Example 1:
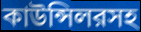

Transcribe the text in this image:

কাউন্সিলরসহ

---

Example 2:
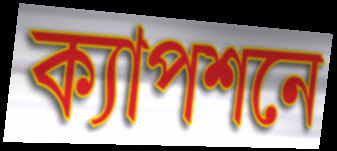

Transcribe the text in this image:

ক্যাপশনে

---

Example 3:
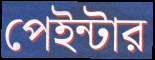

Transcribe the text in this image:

পেইন্টার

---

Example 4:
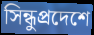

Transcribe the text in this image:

সিন্ধুপ্রদেশে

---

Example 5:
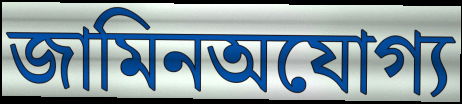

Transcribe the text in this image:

জামিনঅযোগ্য